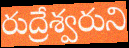
రుద్రేశ్వరుని